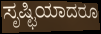
ಸೃಷ್ಟಿಯಾದರೂ